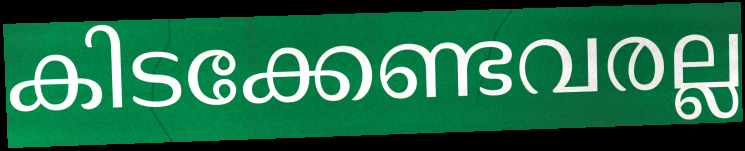
കിടക്കേണ്ടവരല്ല